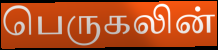
பெருகலின்